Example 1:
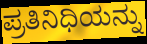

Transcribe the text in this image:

ಪ್ರತಿನಿಧಿಯನ್ನು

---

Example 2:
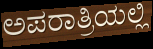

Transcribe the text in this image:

ಅಪರಾತ್ರಿಯಲ್ಲಿ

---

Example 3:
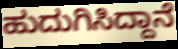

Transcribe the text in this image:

ಹುದುಗಿಸಿದ್ದಾನೆ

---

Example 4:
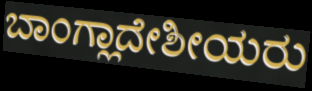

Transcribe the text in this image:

ಬಾಂಗ್ಲಾದೇಶೀಯರು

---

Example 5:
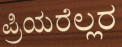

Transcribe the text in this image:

ಪ್ರಿಯರೆಲ್ಲರ